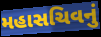
મહાસચિવનું